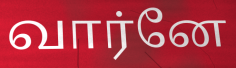
வார்னே